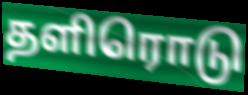
தளிரொடு